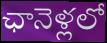
ఛానెళ్లలో